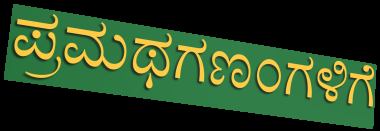
ಪ್ರಮಥಗಣಂಗಳಿಗೆ